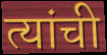
त्‍यांची